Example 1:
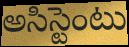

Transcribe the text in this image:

అసిస్టెంటు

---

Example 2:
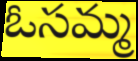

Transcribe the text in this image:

ఓసమ్మ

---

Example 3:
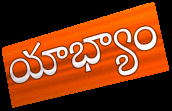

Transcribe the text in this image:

యాభ్యాం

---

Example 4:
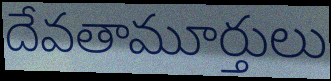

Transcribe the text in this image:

దేవతామూర్తులు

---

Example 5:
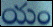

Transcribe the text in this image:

యం